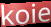
koie